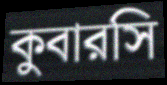
কুবারসি